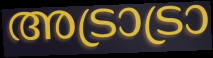
അട്രാട്രാ